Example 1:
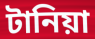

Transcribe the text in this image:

টানিয়া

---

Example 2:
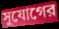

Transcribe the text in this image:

সুযোগের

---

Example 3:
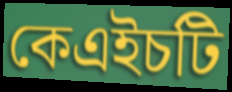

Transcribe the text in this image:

কেএইচটি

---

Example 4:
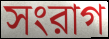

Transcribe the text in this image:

সংরাগ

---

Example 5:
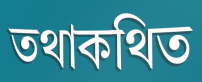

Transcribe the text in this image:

তথাকথিত